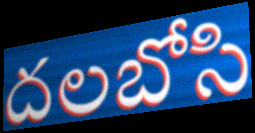
దలబోసి